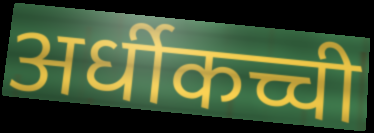
अर्धीकच्ची